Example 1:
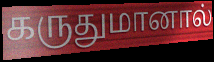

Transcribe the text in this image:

கருதுமானால்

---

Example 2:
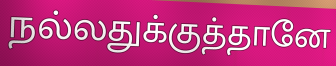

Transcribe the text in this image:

நல்லதுக்குத்தானே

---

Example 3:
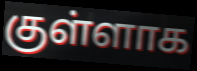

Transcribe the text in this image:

குள்ளாக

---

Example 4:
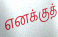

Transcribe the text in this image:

எனக்குத்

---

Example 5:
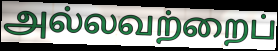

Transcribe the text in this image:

அல்லவற்றைப்